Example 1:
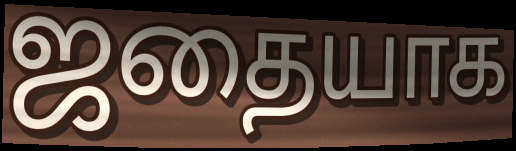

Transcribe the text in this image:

ஜதையாக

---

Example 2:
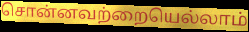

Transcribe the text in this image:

சொன்னவற்றையெல்லாம்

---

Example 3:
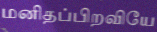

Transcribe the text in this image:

மனிதப்பிறவியே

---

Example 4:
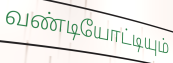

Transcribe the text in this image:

வண்டியோட்டியும்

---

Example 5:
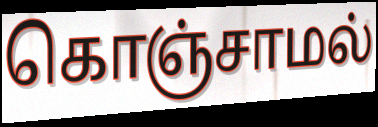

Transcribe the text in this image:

கொஞ்சாமல்